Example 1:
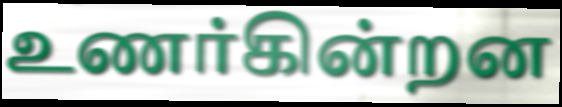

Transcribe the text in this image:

உணர்கின்றன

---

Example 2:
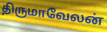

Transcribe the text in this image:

திருமாவேலன்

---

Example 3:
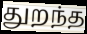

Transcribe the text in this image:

துறந்த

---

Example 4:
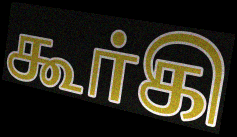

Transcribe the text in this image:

கூர்கி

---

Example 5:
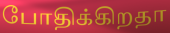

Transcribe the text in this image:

போதிக்கிறதா